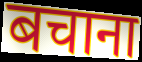
बचाना